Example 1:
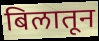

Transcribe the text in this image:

बिलातून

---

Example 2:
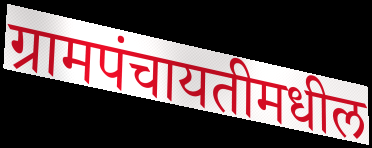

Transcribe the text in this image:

ग्रामपंचायतीमधील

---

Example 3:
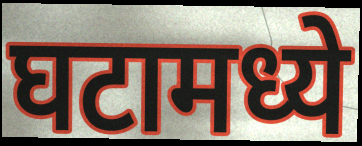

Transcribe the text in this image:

घटामध्ये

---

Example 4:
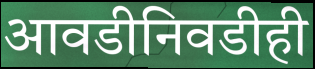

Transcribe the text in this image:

आवडीनिवडीही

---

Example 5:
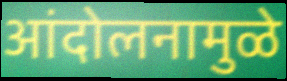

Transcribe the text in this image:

आंदोलनामुळे